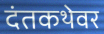
दंतकथेवर